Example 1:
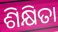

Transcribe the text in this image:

ଶିକ୍ଷିତା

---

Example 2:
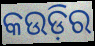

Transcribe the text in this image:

କଉଡ଼ିର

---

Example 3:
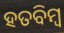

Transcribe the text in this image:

ହତବିମ୍ବ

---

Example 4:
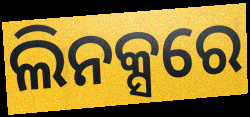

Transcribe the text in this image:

ଲିନକ୍ସରେ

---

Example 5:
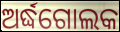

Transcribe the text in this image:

ଅର୍ଦ୍ଧଗୋଲକ